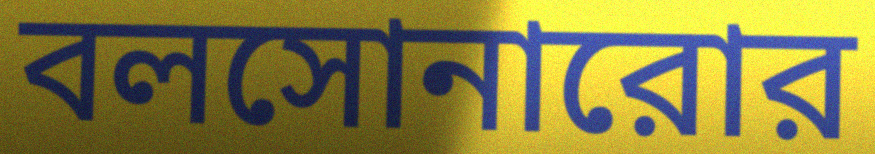
বলসোনারোর